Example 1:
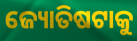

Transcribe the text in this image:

ଜ୍ୟୋତିଷଟାକୁ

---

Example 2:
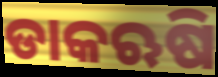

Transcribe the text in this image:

ଡାକଋଷି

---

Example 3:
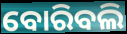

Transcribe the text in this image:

ବୋରିବଲି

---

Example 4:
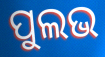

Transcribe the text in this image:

ପୁଲଭ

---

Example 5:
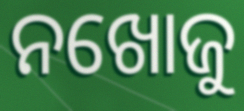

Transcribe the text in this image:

ନଖୋଜୁ